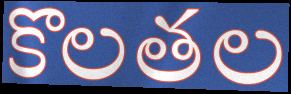
కొలతల